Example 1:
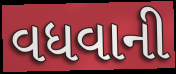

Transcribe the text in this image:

વધવાની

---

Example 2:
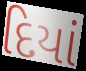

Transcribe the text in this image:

દિયાં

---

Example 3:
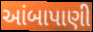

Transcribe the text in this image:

આંબાપાણી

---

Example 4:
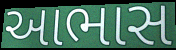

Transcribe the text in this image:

આભાસ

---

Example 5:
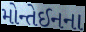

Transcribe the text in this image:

મોન્તેઈનના